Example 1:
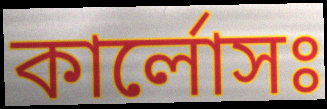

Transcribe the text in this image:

কার্লোসঃ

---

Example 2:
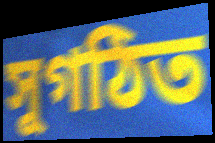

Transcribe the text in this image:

সুগঠিত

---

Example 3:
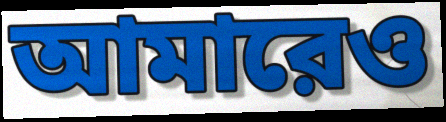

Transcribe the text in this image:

আমারেও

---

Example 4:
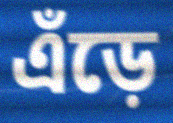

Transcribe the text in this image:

এঁড়ে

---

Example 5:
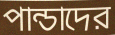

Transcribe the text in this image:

পান্ডাদের